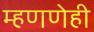
म्हणणेही